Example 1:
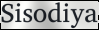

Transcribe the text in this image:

Sisodiya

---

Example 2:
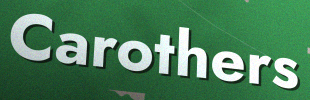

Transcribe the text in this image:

Carothers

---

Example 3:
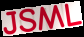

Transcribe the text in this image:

JSML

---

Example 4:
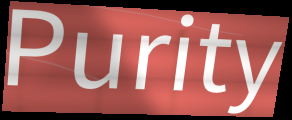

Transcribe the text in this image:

Purity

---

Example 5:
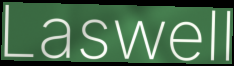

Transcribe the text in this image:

Laswell